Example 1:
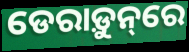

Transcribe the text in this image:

ଡେରାଡ଼ୁନ୍‌ରେ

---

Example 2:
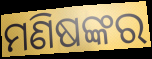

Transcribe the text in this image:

ମଣିଷଙ୍କର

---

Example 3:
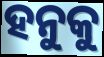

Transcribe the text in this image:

ହନୁକୁ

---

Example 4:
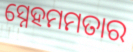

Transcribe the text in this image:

ସ୍ନେହମମତାର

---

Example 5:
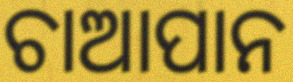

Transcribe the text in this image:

ଚାଆପାନ